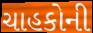
ચાહકોની